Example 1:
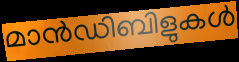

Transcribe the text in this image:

മാൻഡിബിളുകൾ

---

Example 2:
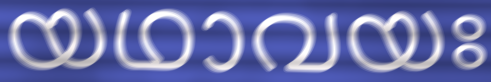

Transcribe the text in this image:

യഥാവയഃ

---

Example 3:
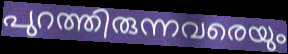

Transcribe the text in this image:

പുറത്തിരുന്നവരെയും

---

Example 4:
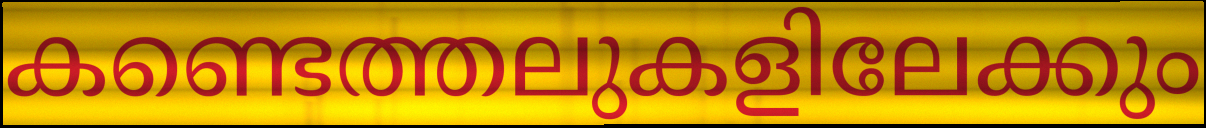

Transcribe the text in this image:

കണ്ടെത്തലുകളിലേക്കും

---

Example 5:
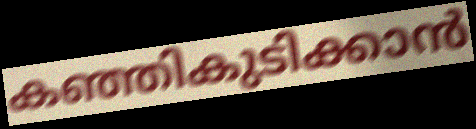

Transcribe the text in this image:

കഞ്ഞികുടിക്കാൻ